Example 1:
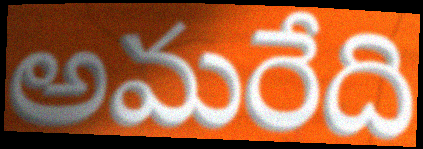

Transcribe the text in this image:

అమరేది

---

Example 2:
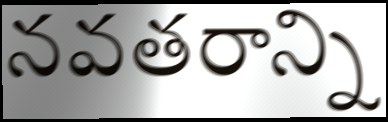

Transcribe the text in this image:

నవతరాన్ని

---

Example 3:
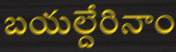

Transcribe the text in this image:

బయల్దేరినాం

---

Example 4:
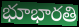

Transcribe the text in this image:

భూభారతి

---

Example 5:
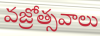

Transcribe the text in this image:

వజ్రోత్సవాలు